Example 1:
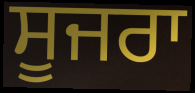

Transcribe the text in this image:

ਸੂਜਰਾ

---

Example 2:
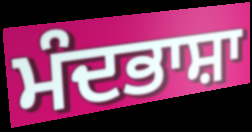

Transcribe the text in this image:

ਮੰਦਭਾਸ਼ਾ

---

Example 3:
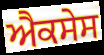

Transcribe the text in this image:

ਐਕਸੇਸ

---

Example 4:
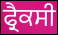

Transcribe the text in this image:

ਫ੍ਰੈਕਸੀ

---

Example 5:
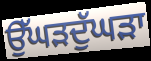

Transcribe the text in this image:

ਉੱਘੜਦੁੱਘੜਾ